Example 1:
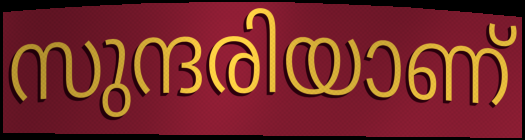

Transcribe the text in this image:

സുന്ദരിയാണ്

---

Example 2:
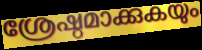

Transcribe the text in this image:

ശ്രേഷ്ഠമാക്കുകയും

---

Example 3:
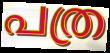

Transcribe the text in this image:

പത്ര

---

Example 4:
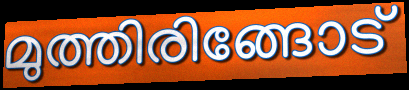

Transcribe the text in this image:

മുത്തിരിങ്ങോട്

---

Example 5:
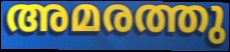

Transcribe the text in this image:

അമരത്തു